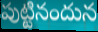
పుట్టినందున